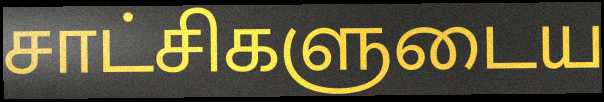
சாட்சிகளுடைய